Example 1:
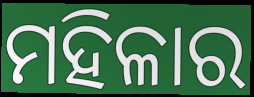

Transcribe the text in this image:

ମହିଳାର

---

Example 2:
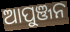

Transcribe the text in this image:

ଆପୁଞ୍ଜନ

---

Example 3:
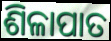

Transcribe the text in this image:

ଶିଳାପାତ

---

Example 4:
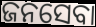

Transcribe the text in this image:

ଜନସେବା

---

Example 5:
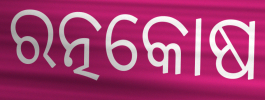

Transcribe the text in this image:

ରତ୍ନକୋଷ